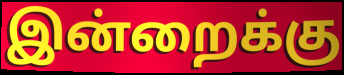
இன்றைக்கு